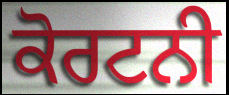
ਕੋਰਟਨੀ